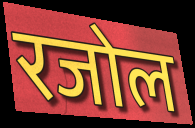
रजोल